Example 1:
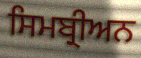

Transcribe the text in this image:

ਸਿਮਬ੍ਰੀਅਨ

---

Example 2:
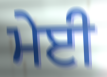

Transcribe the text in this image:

ਮੇਈ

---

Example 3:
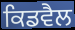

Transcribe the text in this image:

ਕਿਡਵੈਲ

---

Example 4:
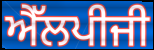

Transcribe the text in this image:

ਐੱਲਪੀਜੀ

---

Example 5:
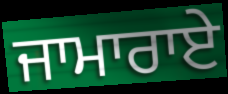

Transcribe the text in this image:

ਜਾਮਾਰਾਏ